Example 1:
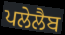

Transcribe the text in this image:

ਪਲੇਲੈਬ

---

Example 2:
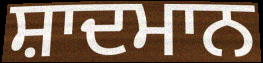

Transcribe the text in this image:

ਸ਼ਾਦਮਾਨ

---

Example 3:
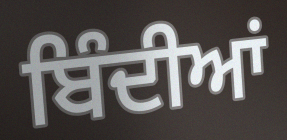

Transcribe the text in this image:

ਬਿੰਦੀਆਂ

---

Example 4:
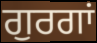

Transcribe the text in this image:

ਗੁਰਗਾਂ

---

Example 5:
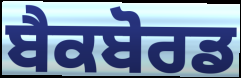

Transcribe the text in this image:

ਬੈਕਬੋਰਡ